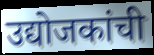
उद्योजकांची